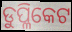
ଡୁପ୍ଳିକେଟ